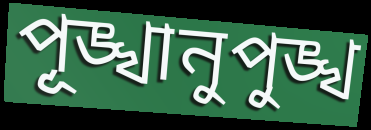
পূঙ্খানুপুঙ্খ